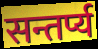
सन्तर्प्य